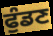
ਫੁੰਡਣ